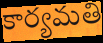
కార్యమతి